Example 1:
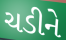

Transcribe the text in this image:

ચડીને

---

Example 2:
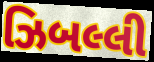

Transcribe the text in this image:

ઝિબલ્લી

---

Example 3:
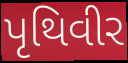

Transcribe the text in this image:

પૃથિવીર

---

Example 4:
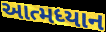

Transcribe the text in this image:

આત્મધ્યાન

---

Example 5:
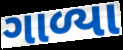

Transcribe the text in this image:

ગાળ્યા